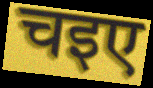
चइए